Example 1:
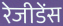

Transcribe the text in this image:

रेजीडेंस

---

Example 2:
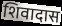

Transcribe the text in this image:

शिवादास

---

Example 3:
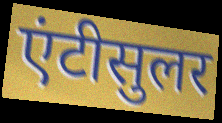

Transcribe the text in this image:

एंटीसुलर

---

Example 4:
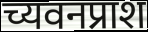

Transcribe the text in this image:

च्‍यवनप्राश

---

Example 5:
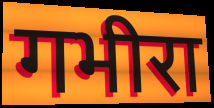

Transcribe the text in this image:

गभीरा